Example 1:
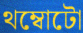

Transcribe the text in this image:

থম্বোটো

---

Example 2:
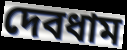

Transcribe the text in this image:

দেবধাম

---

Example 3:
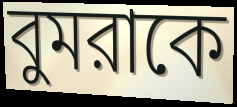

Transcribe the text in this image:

বুমরাকে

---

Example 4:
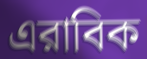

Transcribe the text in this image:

এরাবিক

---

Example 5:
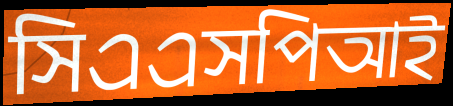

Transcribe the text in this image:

সিএএসপিআই